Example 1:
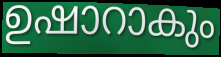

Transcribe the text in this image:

ഉഷാറാകും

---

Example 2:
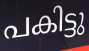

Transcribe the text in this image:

പകിട്ടു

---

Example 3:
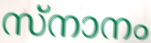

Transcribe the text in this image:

സ്നാനം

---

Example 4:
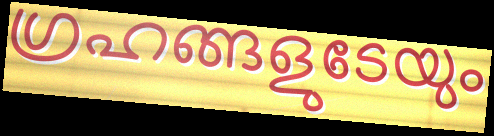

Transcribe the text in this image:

ഗ്രഹങ്ങളുടേയും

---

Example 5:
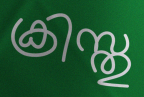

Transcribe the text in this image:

ക്രിസ്തു